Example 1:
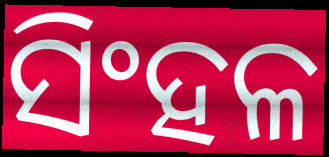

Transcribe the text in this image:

ସିଂହଳ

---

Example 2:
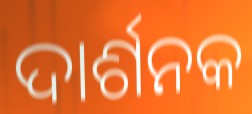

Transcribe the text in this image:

ଦାର୍ଶନକ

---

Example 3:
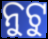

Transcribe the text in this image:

ନୁଟୁ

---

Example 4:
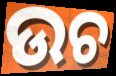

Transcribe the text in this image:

ଉଚ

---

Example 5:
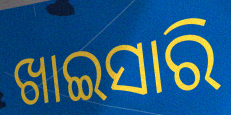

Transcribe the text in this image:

ଖାଇସାରି